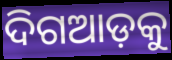
ଦିଗଆଡ଼କୁ